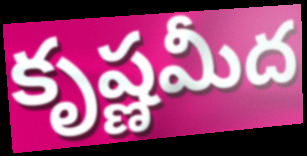
కృష్ణమీద